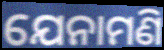
ଯେନାମଣି